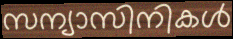
സന്യാസിനികൾ